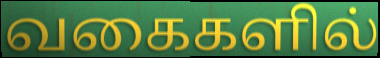
வகைகளில்